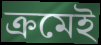
ক্রমেই